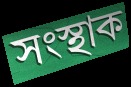
সংস্থাক